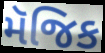
મૅજિક